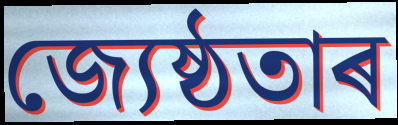
জ্যেষ্ঠতাৰ